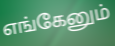
எங்கேனும்